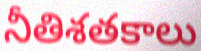
నీతిశతకాలు